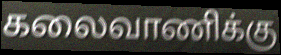
கலைவாணிக்கு